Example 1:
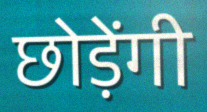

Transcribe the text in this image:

छोड़ेंगी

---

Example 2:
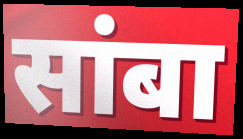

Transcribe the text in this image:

सांबा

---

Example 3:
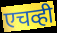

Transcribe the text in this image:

एचव्ही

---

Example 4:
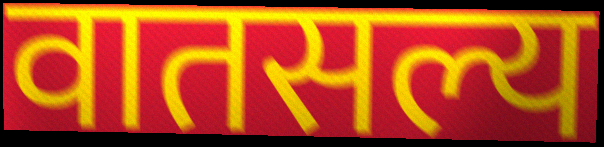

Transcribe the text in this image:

वातसल्य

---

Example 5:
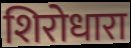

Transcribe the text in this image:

शिरोधारा